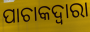
ପାଚାକଦ୍ଵାରା